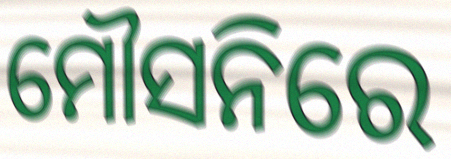
ମୌସନିରେ